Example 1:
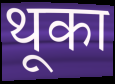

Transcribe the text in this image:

थूका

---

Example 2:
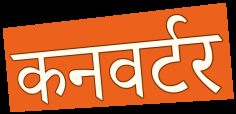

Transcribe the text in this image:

कनवर्टर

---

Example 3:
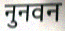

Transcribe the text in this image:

नुनवन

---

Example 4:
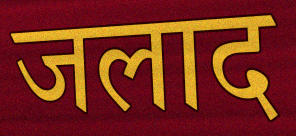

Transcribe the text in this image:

जलाद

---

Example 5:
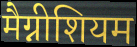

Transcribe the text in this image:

मैग्नीशियम